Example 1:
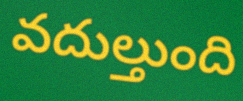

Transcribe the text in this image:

వదుల్తుంది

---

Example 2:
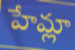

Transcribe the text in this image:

హేమ్లా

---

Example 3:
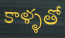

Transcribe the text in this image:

కాళ్ళతో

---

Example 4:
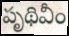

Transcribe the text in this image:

పృథివీం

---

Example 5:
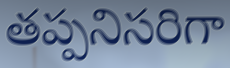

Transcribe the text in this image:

తప్పనిసరిగా